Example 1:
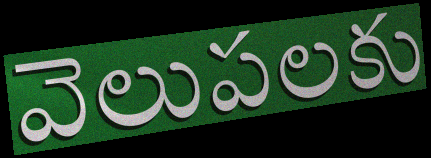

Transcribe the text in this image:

వెలుపలకు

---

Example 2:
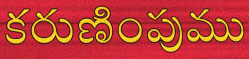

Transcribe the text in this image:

కరుణింపుము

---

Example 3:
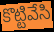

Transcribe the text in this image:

కొట్టివేసి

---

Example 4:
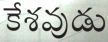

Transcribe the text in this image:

కేశవుడు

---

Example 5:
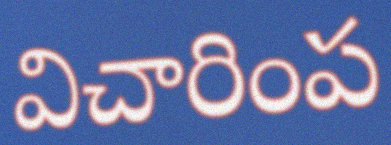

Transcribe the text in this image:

విచారింప